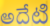
అదేటి